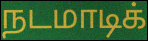
நடமாடிக்